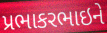
પ્રભાકરભાઇને